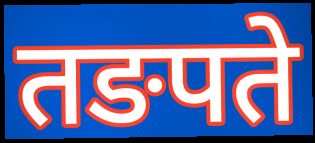
तङपते